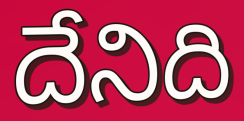
దేనిది